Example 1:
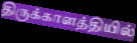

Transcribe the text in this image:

திருக்காளத்தியில்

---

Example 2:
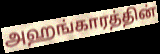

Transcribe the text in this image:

அஹங்காரத்தின்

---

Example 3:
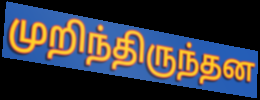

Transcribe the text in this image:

முறிந்திருந்தன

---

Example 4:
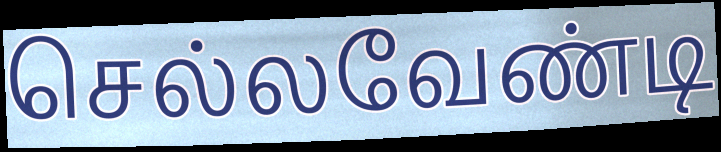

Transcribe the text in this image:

செல்லவேண்டி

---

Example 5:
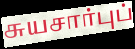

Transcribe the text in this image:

சுயசார்புப்